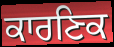
ਕਾਰਣਿਕ